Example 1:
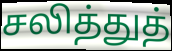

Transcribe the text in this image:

சலித்துத்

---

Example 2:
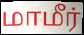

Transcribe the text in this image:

மாமீர்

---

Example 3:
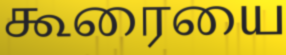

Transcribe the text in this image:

கூரையை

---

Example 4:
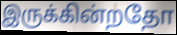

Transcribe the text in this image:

இருக்கின்றதோ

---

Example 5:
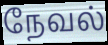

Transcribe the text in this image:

நேவல்